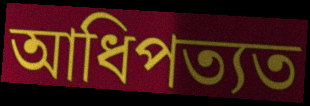
আধিপত্যত